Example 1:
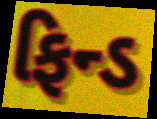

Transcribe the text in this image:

ફિન્ડ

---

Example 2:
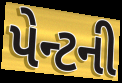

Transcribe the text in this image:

પેન્ટની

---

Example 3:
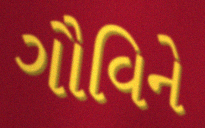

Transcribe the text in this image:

ગૌવિને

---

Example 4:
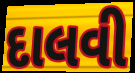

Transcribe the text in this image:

દાલવી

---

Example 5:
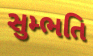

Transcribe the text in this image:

સુમ્ભતિ